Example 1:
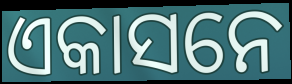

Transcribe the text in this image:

ଏକାସନେ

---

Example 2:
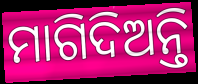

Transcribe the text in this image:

ମାଗିଦିଅନ୍ତି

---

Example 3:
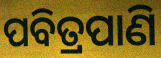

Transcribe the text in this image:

ପବିତ୍ରପାଣି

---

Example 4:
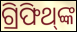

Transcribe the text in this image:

ଗ୍ରିଫିଥ୍‌ଙ୍କ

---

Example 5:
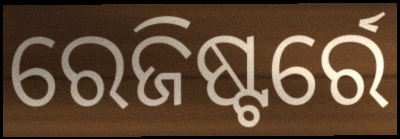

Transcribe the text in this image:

ରେଜିଷ୍ଟର୍ରେ